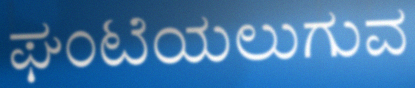
ಘಂಟೆಯಲುಗುವ